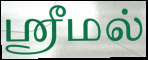
ஶ்ரீமல்